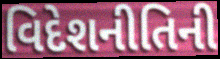
વિદેશનીતિની